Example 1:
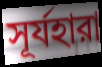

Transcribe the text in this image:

সূর্যহারা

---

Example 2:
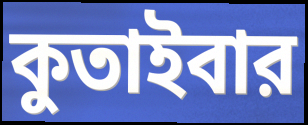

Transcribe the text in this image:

কুতাইবার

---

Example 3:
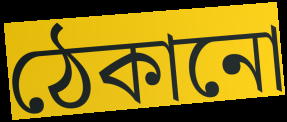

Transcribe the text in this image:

ঠেকানো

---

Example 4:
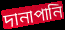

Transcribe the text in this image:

দানাপানি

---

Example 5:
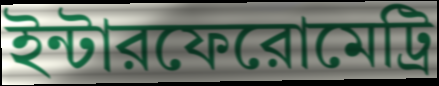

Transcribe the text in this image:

ইন্টারফেরোমেট্রি